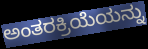
ಅಂತರಕ್ರಿಯೆಯನ್ನು